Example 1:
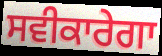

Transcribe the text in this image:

ਸਵੀਕਾਰੇਗਾ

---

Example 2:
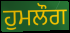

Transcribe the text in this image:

ਹੁਮਲੌਗ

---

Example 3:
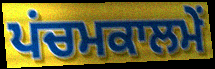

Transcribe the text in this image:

ਪਂਚਮਕਾਲਮੇਂ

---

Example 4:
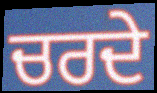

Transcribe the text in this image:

ਚਰਦੇ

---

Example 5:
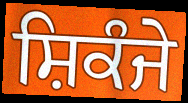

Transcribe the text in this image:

ਸ਼ਿਕੰਜੇ